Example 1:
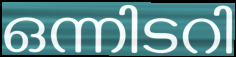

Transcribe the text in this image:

ഒന്നിടറി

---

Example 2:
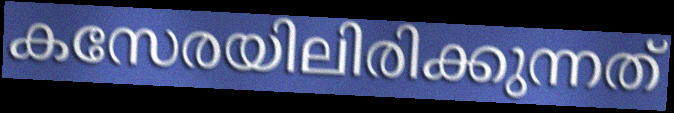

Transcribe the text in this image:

കസേരയിലിരിക്കുന്നത്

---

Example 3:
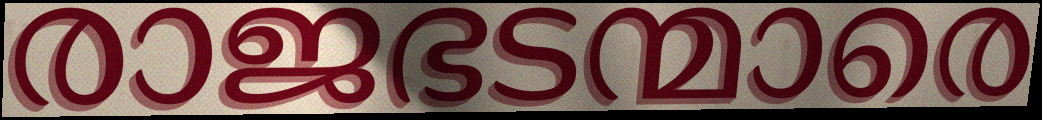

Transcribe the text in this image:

രാജഭടന്മാരെ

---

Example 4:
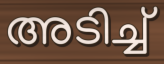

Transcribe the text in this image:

അടിച്ച്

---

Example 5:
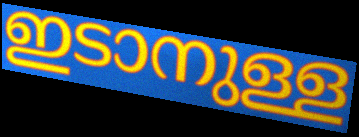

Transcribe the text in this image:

ഇടാനുള്ള